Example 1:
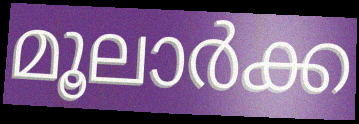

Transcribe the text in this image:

മൂലാർക്ക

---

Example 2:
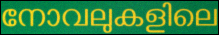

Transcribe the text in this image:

നോവലുകളിലെ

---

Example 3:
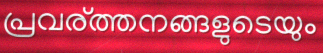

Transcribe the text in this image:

പ്രവര്ത്തനങ്ങളുടെയും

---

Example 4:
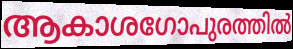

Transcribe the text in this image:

ആകാശഗോപുരത്തിൽ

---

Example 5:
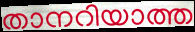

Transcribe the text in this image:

താനറിയാത്ത